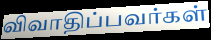
விவாதிப்பவர்கள்